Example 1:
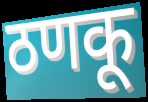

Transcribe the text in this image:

ठणकू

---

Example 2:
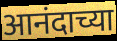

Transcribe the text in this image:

आनंदाच्या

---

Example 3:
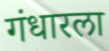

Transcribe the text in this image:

गंधारला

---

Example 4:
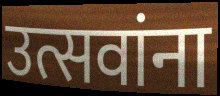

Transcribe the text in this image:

उत्सवांना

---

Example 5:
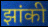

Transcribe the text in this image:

झांकी